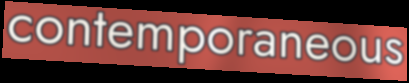
contemporaneous